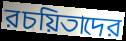
রচয়িতাদের